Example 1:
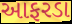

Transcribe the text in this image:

આફરડા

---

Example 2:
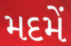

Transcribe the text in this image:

મદમેં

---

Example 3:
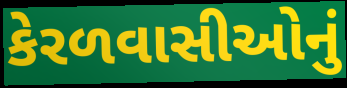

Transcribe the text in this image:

કેરળવાસીઓનું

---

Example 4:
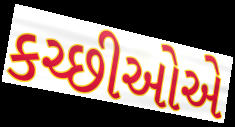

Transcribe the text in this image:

કચ્છીઓએ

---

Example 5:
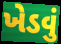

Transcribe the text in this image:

ખેડવું